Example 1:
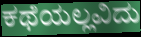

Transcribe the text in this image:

ಕಥೆಯಲ್ಲವಿದು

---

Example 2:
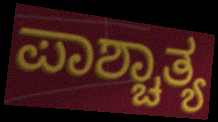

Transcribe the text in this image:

ಪಾಶ್ಚಾತ್ಯ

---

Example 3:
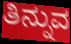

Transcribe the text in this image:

ತಿನ್ನುವ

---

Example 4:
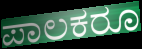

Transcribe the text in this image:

ಪಾಲಕರೂ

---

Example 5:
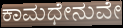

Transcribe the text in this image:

ಕಾಮಧೇನುವೇ